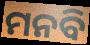
ମନବି